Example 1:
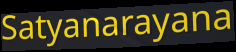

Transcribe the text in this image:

Satyanarayana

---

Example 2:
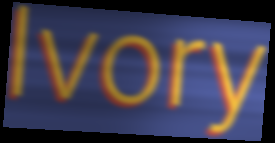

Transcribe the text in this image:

Ivory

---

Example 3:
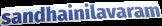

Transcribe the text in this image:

sandhainilavaram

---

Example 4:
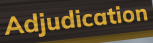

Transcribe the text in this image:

Adjudication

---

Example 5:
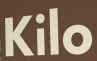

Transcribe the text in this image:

Kilo